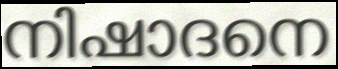
നിഷാദനെ